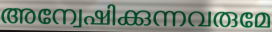
അന്വേഷിക്കുന്നവരുമേ